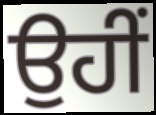
ਉਹੀਂ